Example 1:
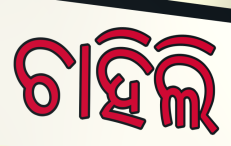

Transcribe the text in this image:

ଚାହିଲି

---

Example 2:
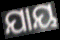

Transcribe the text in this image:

ଯାୟ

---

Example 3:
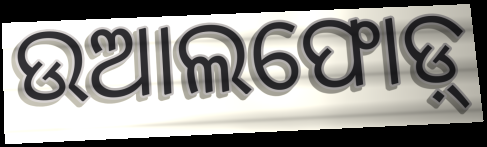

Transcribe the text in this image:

ଉଆଲଫୋଡ଼୍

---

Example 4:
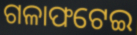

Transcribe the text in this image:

ଗଳାଫଟେଇ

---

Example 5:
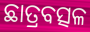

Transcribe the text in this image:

ଛାତ୍ରବତ୍ସଳ